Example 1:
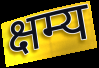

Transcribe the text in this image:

क्षम्य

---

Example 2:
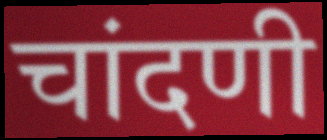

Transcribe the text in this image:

चांदणी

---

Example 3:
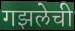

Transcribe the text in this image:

गझलेची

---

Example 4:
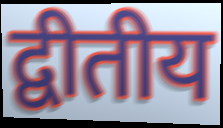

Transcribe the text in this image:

द्वीतीय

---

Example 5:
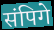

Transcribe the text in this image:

संपिगे